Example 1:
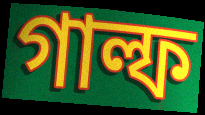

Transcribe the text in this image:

গাল্ফ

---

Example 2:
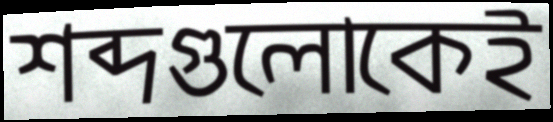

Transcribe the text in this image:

শব্দগুলোকেই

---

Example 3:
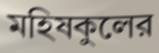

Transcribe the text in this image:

মহিষকুলের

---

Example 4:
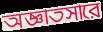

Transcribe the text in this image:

অজ্ঞাতসারে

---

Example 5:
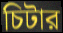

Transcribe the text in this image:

চিটার